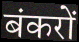
बंकरों